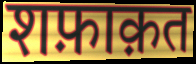
शफ़ाक़त